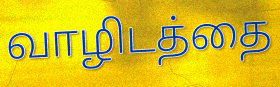
வாழிடத்தை